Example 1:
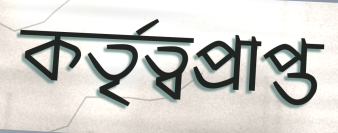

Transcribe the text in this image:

কৰ্তৃত্বপ্ৰাপ্ত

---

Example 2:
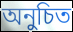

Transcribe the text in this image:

অনুচিত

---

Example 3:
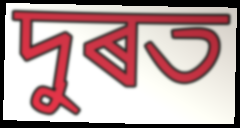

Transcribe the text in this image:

দুৰত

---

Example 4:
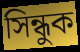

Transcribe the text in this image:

সিন্ধুক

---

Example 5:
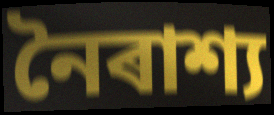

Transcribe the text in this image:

নৈৰাশ্য